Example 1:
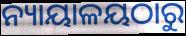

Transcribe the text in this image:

ନ୍ୟାୟାଳୟଠାରୁ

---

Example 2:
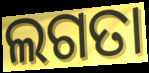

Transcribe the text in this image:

ଲଗତା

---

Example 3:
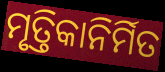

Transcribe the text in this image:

ମୃତ୍ତିକାନିର୍ମିତ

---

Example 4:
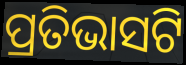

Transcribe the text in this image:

ପ୍ରତିଭାସଟି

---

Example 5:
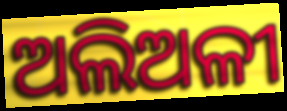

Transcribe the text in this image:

ଅଲିଅଳୀ